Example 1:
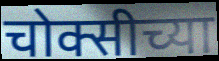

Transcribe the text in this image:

चोक्सीच्या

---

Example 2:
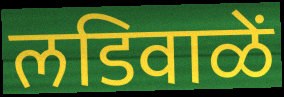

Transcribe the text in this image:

लडिवाळें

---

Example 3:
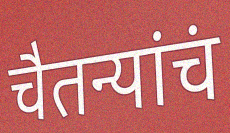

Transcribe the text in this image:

चैतन्यांचं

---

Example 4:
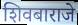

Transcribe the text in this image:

शिवबाराजे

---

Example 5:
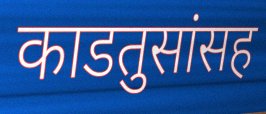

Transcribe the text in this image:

काडतुसांसह